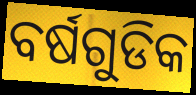
ବର୍ଷଗୁଡିକ